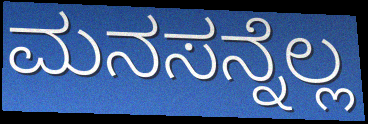
ಮನಸನ್ನೆಲ್ಲ